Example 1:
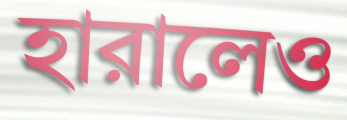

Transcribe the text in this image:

হারালেও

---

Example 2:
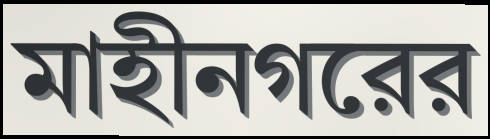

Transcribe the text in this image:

মাহীনগরের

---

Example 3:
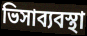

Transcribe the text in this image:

ভিসাব্যবস্থা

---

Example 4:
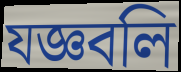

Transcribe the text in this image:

যজ্ঞবলি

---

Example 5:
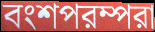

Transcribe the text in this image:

বংশপরম্পরা